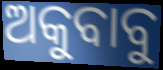
ଅକୁବାବୁ